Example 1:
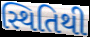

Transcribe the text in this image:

સ્થિતિથી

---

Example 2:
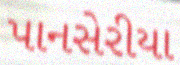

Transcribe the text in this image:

પાનસેરીયા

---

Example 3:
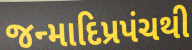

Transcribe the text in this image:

જન્માદિપ્રપંચથી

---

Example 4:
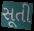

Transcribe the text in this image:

સૂતી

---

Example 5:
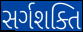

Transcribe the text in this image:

સર્ગશક્તિ